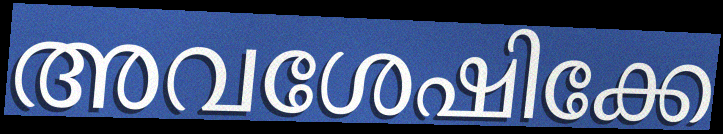
അവശേഷിക്കേ